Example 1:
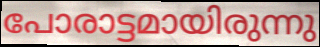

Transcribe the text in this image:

പോരാട്ടമായിരുന്നു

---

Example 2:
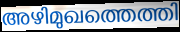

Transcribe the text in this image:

അഴിമുഖത്തെത്തി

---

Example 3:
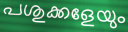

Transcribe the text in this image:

പശുക്കളേയും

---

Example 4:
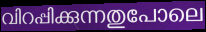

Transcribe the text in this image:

വിറപ്പിക്കുന്നതുപോലെ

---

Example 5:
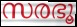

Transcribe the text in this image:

സരഭൂ